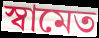
স্বামেত